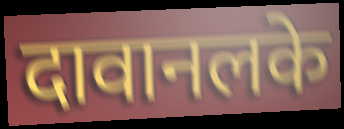
दावानलके